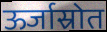
ऊर्जास्रोत